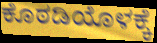
ಕೊಠಡಿಯೊಳಕ್ಕೆ